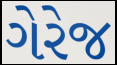
ગેરેજ